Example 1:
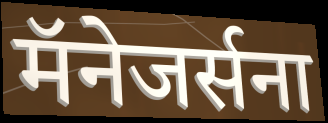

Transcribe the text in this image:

मॅनेजर्सना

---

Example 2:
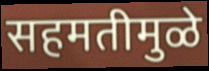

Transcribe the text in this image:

सहमतीमुळे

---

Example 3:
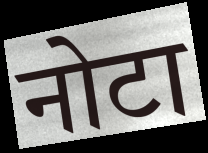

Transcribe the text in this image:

नोटा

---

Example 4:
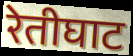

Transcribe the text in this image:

रेतीघाट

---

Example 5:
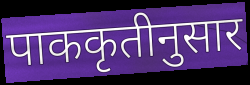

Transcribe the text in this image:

पाककृतीनुसार